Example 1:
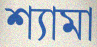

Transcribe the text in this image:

শ্যামা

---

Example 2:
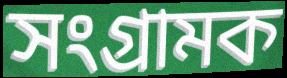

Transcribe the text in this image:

সংগ্ৰামক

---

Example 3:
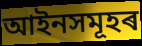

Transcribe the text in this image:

আইনসমূহৰ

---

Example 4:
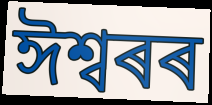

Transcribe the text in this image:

ঈশ্বৰৰ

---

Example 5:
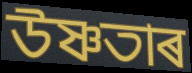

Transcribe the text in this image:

উষ্ণতাৰ